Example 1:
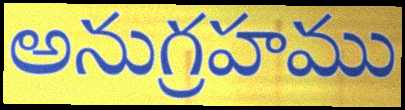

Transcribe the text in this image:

అనుగ్రహము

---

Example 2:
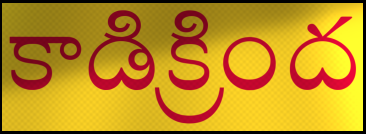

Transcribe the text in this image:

కాడిక్రింద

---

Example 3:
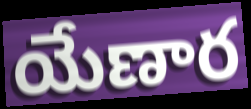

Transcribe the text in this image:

యేణార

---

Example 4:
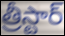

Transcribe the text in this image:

త్రీస్టార్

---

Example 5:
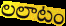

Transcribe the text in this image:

లలాటం